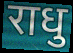
राधु